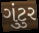
ગુંટુર